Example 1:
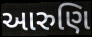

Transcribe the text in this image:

આરુણિ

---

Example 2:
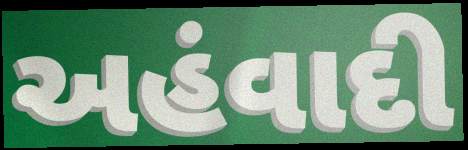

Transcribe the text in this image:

અહંવાદી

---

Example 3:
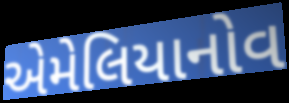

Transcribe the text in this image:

એમેલિયાનોવ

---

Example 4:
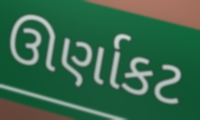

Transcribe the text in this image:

ઊર્ણાકટ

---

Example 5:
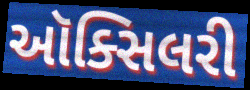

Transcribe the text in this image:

ઑક્સિલરી